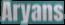
Aryans